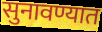
सुनावण्यात